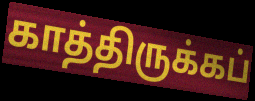
காத்திருக்கப்